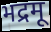
भद्रमू